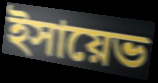
ইসায়েভ